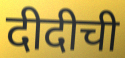
दीदीची